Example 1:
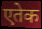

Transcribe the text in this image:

एतेक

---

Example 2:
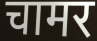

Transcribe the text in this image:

चामर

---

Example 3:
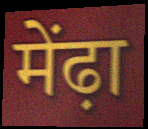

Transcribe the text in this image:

मेंढ़ा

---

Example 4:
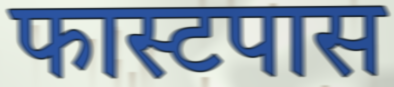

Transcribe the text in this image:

फास्टपास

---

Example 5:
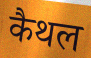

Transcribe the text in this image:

कैथल